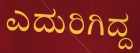
ಎದುರಿಗಿದ್ದ